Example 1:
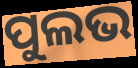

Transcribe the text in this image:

ପୁଲଭ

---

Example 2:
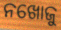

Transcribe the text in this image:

ନଖୋଜୁ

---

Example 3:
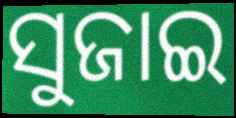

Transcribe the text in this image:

ସୁଜାଇ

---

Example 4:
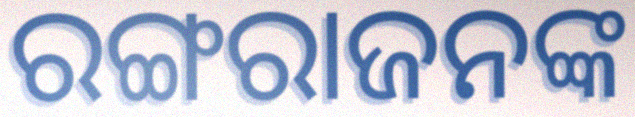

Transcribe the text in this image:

ରଙ୍ଗରାଜନଙ୍କ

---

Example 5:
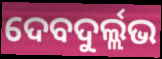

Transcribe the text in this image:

ଦେବଦୁର୍ଲ୍ଲଭ